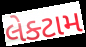
લેક્ટામ